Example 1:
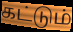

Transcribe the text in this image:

கட்டும்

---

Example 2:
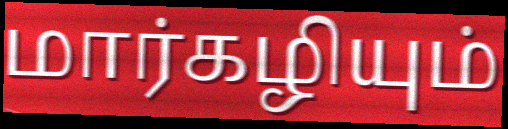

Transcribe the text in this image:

மார்கழியும்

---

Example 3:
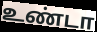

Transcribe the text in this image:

உண்டா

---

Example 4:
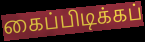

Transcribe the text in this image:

கைப்பிடிக்கப்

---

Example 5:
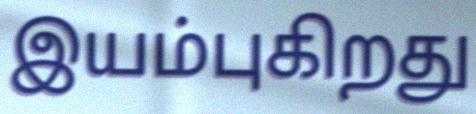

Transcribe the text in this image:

இயம்புகிறது